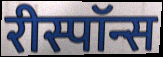
रीस्पॉन्स